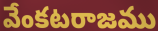
వేంకటరాజము